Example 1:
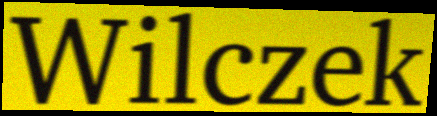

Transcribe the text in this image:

Wilczek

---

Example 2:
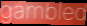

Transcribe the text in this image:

gambled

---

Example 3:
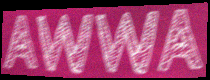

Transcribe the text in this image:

AWWA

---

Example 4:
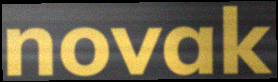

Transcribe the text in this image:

novak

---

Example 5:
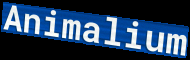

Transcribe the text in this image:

Animalium